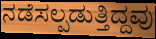
ನಡೆಸಲ್ಪಡುತ್ತಿದ್ದವು